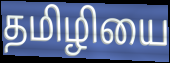
தமிழியை